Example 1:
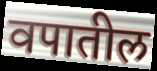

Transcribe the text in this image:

वपातील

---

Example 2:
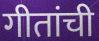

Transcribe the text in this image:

गीतांची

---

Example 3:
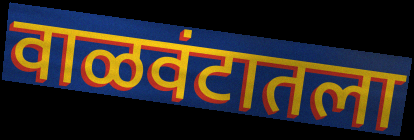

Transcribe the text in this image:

वाळवंटातला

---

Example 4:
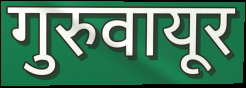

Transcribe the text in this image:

गुरुवायूर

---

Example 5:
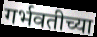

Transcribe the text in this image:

गर्भवतीच्या